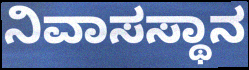
ನಿವಾಸಸ್ಥಾನ